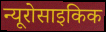
न्यूरोसाइकिक